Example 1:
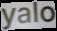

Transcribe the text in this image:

yalo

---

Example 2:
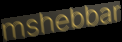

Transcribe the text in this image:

mshebbar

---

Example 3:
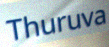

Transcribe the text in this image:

Thuruva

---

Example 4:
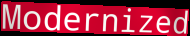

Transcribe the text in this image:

Modernized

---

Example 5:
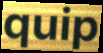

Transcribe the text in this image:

quip